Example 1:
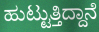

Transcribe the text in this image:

ಹುಟ್ಟುತ್ತಿದ್ದಾನೆ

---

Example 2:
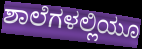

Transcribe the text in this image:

ಶಾಲೆಗಳಲ್ಲಿಯೂ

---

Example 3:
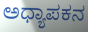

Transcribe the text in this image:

ಅಧ್ಯಾಪಕನ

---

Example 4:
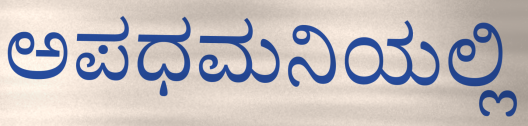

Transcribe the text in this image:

ಅಪಧಮನಿಯಲ್ಲಿ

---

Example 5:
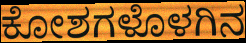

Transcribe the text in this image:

ಕೋಶಗಳೊಳಗಿನ